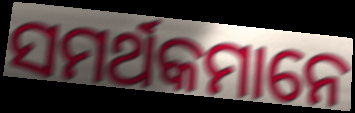
ସମର୍ଥକମାନେ